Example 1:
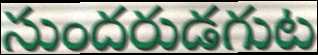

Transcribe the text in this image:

సుందరుడగుట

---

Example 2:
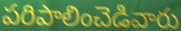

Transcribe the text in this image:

పరిపాలించెడివారు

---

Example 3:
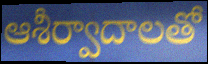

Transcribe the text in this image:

ఆశీర్వాదాలతో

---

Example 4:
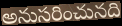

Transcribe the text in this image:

అనుసరించునది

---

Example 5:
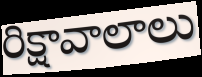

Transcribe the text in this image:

రిక్షావాలాలు